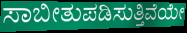
ಸಾಬೀತುಪಡಿಸುತ್ತಿವೆಯೇ